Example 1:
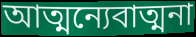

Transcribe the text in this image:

আত্মন্যেবাত্মনা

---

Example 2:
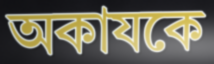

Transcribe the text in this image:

অকাযকে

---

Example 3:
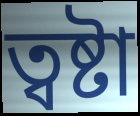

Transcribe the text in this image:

ত্বষ্টা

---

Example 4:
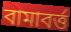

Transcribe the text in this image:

বামাবর্ত্ত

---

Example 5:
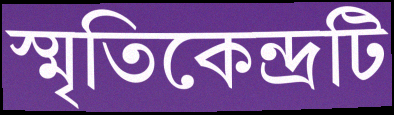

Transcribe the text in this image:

স্মৃতিকেন্দ্রটি